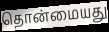
தொன்மையது